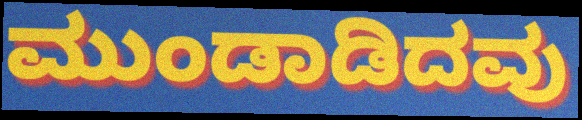
ಮುಂಡಾಡಿದವು